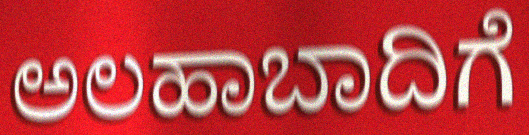
ಅಲಹಾಬಾದಿಗೆ